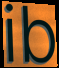
ib